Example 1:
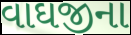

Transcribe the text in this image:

વાઘજીના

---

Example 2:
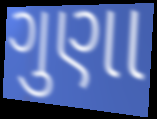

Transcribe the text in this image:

ગુણા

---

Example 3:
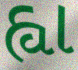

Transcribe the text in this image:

હ્વા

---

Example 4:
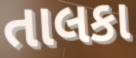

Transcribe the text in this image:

તાલકા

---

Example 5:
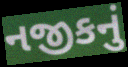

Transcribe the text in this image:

નજીકનું